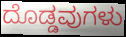
ದೊಡ್ಡವುಗಳು